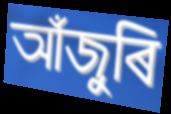
আঁজুৰি